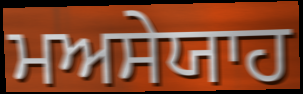
ਮਅਸੇਯਾਹ